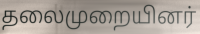
தலைமுறையினர்